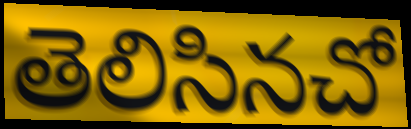
తెలిసినచో